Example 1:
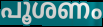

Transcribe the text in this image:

പൂശണം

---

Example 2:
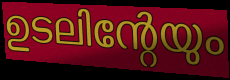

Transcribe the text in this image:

ഉടലിന്റേയും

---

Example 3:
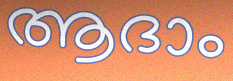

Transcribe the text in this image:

ആദാം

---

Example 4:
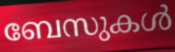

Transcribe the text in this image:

ബേസുകൾ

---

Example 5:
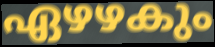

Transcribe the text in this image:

ഏഴഴകും